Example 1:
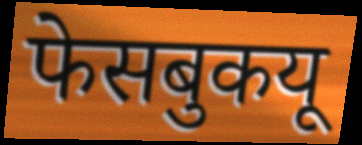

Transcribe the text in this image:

फेसबुकयू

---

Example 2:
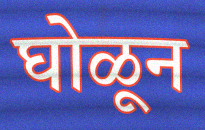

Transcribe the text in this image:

घोळून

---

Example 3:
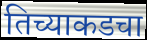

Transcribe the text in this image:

तिच्याकडचा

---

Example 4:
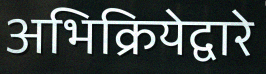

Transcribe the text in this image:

अभिक्रियेद्वारे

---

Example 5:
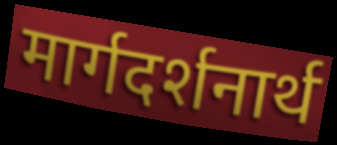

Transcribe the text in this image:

मार्गदर्शनार्थ